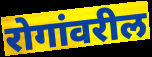
रोगांवरील